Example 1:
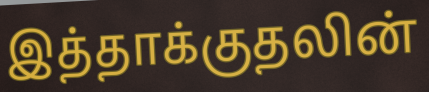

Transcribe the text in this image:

இத்தாக்குதலின்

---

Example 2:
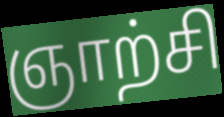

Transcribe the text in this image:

ஞாற்சி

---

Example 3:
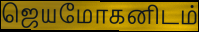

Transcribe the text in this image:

ஜெயமோகனிடம்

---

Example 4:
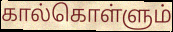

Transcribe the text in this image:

கால்கொள்ளும்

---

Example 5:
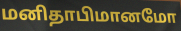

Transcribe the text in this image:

மனிதாபிமானமோ